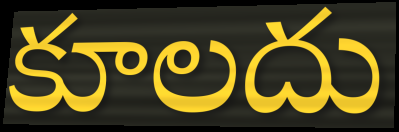
కూలదు